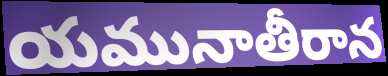
యమునాతీరాన